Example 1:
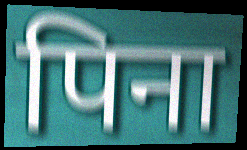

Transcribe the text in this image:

पिना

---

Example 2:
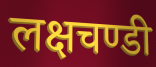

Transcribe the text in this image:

लक्षचण्डी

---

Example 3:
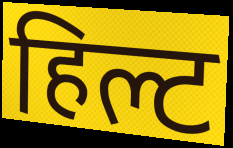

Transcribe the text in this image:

हिल्ट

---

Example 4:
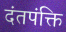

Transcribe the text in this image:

दंतपंक्ति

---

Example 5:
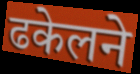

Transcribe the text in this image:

ढकेलने